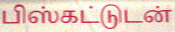
பிஸ்கட்டுடன்